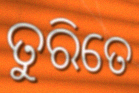
ତୁରିତେ